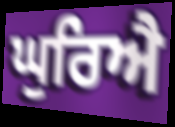
ਘੁਰਿਐ